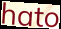
hato